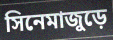
সিনেমাজুড়ে